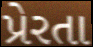
પ્રેરતા